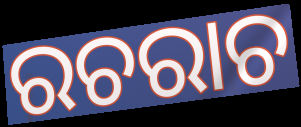
ରଚରାଚ